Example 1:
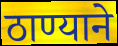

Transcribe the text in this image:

ठाण्याने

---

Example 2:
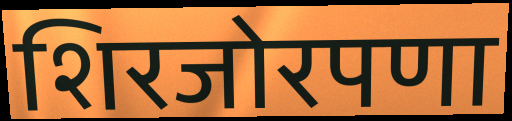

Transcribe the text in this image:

शिरजोरपणा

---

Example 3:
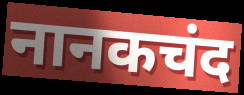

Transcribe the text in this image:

नानकचंद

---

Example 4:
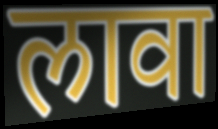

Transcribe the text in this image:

लावा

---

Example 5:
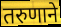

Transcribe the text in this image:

तरुणाने